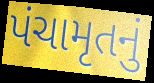
પંચામૃતનું